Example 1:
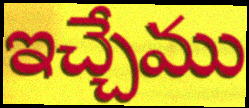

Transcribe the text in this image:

ఇచ్చేము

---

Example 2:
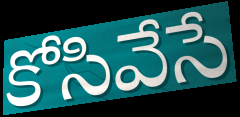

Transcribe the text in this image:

కోసివేసే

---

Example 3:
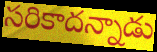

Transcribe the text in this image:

సరికాదన్నాడు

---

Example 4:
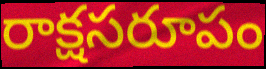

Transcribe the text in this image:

రాక్షసరూపం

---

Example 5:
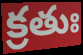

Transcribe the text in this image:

క్రతుః